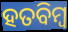
ହତବିମ୍ବ